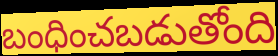
బంధించబడుతోంది